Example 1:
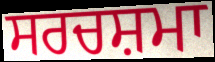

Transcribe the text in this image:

ਸਰਚਸ਼ਮਾ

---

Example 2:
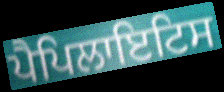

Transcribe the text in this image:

ਪੈਪਿਲਾਇਟਿਸ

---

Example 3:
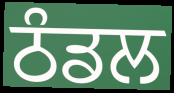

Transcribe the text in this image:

ਠੰਡਲ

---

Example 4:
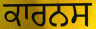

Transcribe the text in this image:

ਕਾਰਨਸ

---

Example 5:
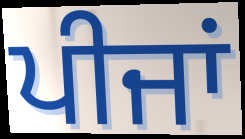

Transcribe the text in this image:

ਪੀਜਾਂ